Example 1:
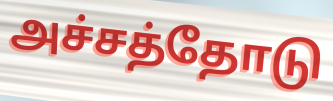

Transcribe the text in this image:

அச்சத்தோடு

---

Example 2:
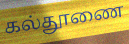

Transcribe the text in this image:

கல்தூணை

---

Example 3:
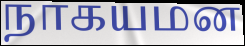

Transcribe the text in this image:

நாகயமன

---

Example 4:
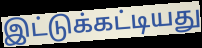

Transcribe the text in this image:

இட்டுக்கட்டியது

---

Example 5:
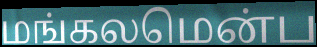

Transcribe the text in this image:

மங்கலமென்ப